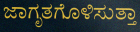
ಜಾಗೃತಗೊಳಿಸುತ್ತಾ